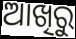
ଆଖିରୁ